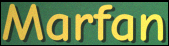
Marfan